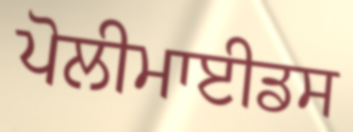
ਪੋਲੀਮਾਈਡਸ